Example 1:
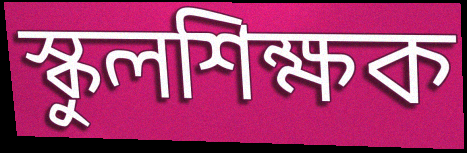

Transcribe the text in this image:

স্কুলশিক্ষক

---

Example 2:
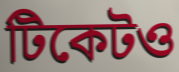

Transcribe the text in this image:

টিকেটও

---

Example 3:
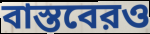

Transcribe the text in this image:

বাস্তবেরও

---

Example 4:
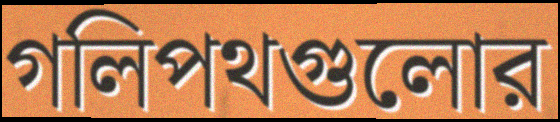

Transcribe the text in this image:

গলিপথগুলোর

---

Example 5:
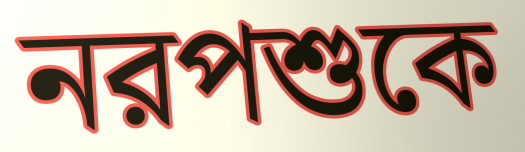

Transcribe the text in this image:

নরপশুকে